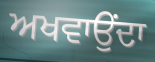
ਅਖਵਾਉਂਦਾ